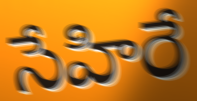
సేహిరే